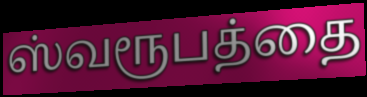
ஸ்வரூபத்தை